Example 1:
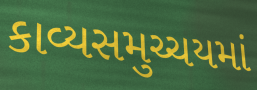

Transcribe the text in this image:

કાવ્યસમુચ્ચયમાં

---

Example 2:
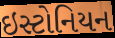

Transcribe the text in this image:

ઇસ્ટોનિયન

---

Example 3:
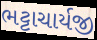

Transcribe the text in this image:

ભટ્ટાચાર્યજી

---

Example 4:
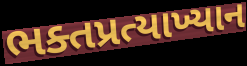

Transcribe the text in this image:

ભક્તપ્રત્યાખ્યાન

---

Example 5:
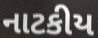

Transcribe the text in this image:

નાટકીય